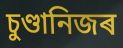
চুণ্ডানিজৰ